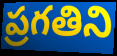
ప్రగతిని